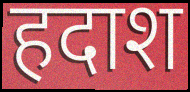
हदाश